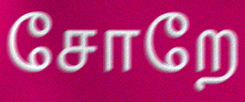
சோறே